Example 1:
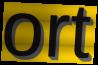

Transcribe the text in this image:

ort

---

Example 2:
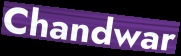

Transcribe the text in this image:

Chandwar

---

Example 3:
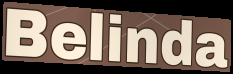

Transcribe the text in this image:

Belinda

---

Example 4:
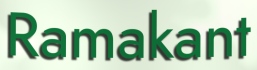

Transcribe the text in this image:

Ramakant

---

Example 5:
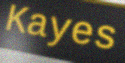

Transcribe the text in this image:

Kayes